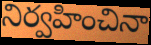
నిర్వహించినా